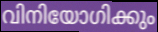
വിനിയോഗിക്കും